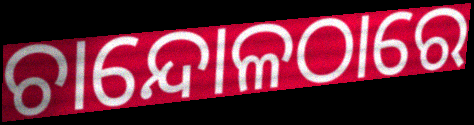
ଚାନ୍ଦୋଳଠାରେ